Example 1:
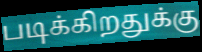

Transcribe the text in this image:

படிக்கிறதுக்கு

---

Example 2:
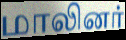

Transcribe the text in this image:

மாலினர்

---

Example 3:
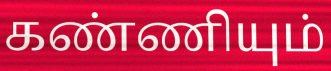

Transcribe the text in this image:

கண்ணியும்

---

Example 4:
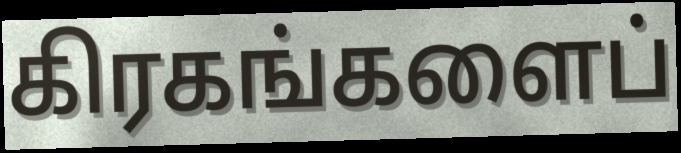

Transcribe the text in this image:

கிரகங்களைப்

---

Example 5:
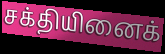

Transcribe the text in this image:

சக்தியினைக்